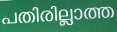
പതിരില്ലാത്ത